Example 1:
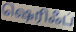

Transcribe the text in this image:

ஷெரிஃப்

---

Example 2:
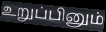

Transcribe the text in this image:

உறுப்பினும்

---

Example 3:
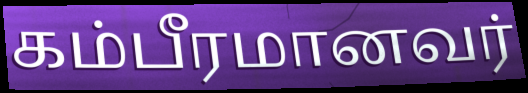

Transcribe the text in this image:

கம்பீரமானவர்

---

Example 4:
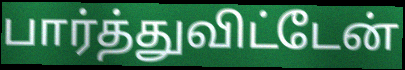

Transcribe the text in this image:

பார்த்துவிட்டேன்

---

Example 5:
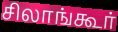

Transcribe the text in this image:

சிலாங்கூர்